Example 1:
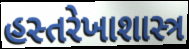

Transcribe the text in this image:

હસ્તરેખાશાસ્ત્ર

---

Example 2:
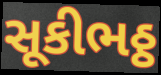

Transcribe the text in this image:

સૂકીભઠ્ઠ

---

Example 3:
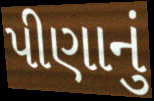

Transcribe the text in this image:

પીણાનું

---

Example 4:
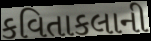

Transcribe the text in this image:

કવિતાકલાની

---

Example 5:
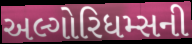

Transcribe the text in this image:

અલ્ગોરિધમ્સની